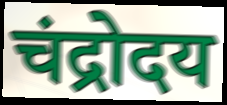
चंद्रोदय